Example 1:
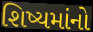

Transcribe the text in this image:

શિષ્યમાંનો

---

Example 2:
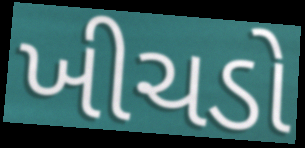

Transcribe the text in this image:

ખીચડો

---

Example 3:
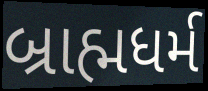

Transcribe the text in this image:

બ્રાહ્મધર્મ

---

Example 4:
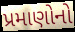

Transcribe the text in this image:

પ્રમાણોનો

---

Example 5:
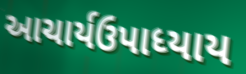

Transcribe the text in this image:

આચાર્યઉપાધ્યાય